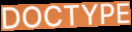
DOCTYPE